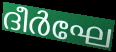
ദീർഘേ